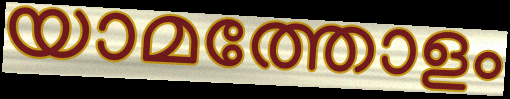
യാമത്തോളം